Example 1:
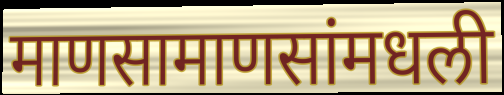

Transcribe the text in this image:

माणसामाणसांमधली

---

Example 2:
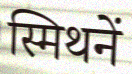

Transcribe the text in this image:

स्मिथनें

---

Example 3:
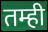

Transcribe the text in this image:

तम्ही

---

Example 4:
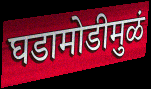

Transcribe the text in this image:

घडामोडीमुळं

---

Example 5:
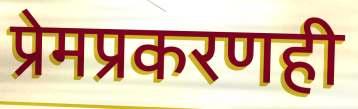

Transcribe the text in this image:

प्रेमप्रकरणही